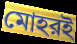
মোহরই